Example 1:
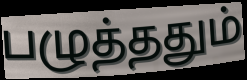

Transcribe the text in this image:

பழுத்ததும்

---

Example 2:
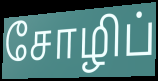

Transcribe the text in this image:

சோழிப்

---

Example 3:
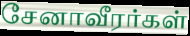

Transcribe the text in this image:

சேனாவீரர்கள்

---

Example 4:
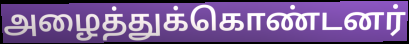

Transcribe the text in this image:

அழைத்துக்கொண்டனர்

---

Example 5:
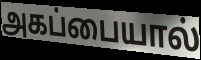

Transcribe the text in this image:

அகப்பையால்